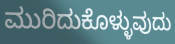
ಮುರಿದುಕೊಳ್ಳುವುದು